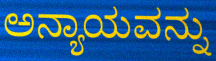
ಅನ್ಯಾಯವನ್ನು